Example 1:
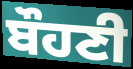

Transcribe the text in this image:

ਬੌਹਣੀ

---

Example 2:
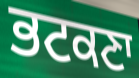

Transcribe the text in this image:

ਭਟਕਣਾ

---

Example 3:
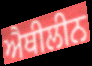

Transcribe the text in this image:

ਐਥੀਲੀਨ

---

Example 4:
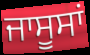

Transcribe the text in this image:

ਜਾਸੂਸਾਂ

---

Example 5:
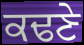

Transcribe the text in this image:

ਕਢਣੇ